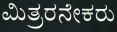
ಮಿತ್ರರನೇಕರು